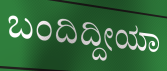
ಬಂದಿದ್ದೀಯಾ